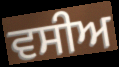
ਵਸੀਅ